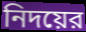
নিদয়ের